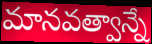
మానవత్వాన్నే